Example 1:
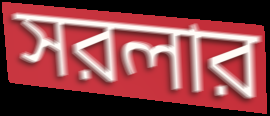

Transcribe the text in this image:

সরলার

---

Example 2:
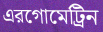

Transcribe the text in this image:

এরগোমেট্রিন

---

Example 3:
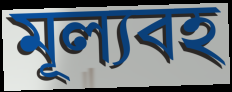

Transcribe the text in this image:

মূল্যবহ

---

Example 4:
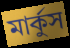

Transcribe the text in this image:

মার্কুস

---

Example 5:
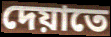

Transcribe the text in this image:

দেয়াতে